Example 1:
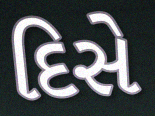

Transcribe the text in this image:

દિસે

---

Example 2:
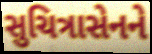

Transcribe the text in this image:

સુચિત્રાસેનને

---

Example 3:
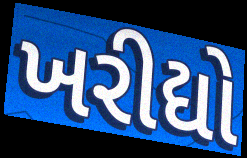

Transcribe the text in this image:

ખરીદ્યો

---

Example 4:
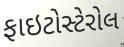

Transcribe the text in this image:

ફાઇટોસ્ટેરોલ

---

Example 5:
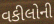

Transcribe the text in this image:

વકીલોની